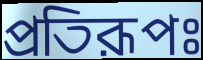
প্রতিরূপঃ